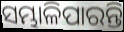
ସମ୍ଭାଳିପାରନ୍ତି